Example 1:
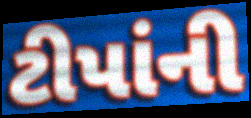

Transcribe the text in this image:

ટીપાંની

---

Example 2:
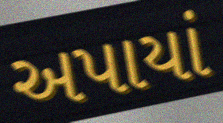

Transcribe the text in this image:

અપાયાં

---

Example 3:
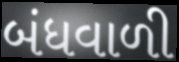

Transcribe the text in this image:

બંધવાળી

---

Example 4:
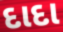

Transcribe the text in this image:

દાદા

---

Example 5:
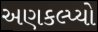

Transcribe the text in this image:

અણકલ્પ્યો